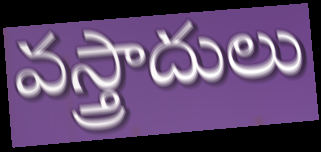
వస్త్రాదులు